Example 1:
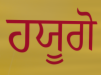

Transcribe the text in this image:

ਹਯੂਗੋ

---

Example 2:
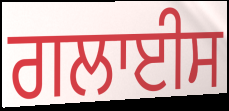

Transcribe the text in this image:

ਗਲਾਈਸ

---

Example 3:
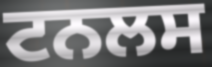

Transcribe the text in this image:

ਟਨਲਸ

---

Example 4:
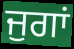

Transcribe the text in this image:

ਜੁਗਾਂ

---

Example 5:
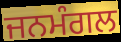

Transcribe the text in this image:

ਜਨਮੰਗਲ